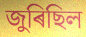
জুৰিছিল